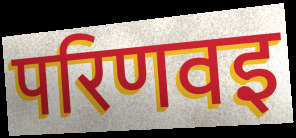
परिणवइ